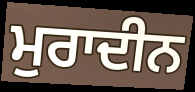
ਮੁਰਾਦੀਨ